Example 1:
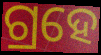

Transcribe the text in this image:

ଗ୍ରହେ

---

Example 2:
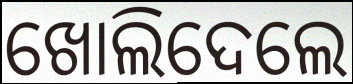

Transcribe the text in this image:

ଖୋଲିଦେଲେ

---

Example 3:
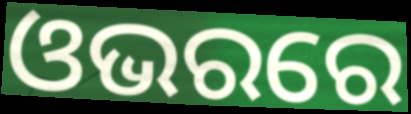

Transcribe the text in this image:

ଓଭରରେ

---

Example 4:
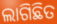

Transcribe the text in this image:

ଲାଗିଛିତ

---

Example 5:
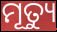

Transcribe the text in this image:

ମୂତ୍ୟୁ